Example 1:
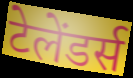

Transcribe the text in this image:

टेलेंडर्स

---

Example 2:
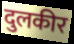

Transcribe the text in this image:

दुलकीर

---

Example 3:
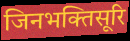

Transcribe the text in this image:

जिनभक्तिसूरि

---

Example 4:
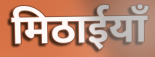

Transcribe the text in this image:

मिठाईयाँ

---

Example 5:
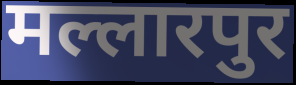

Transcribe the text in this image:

मल्लारपुर